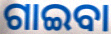
ଗାଇବା